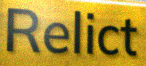
Relict